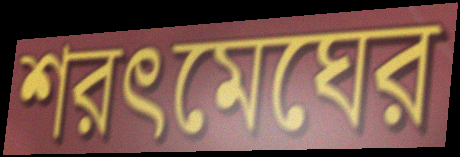
শরৎমেঘের